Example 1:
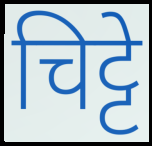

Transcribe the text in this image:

चिट्टे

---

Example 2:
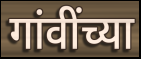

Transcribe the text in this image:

गांवींच्या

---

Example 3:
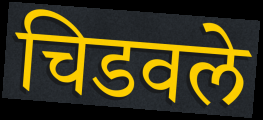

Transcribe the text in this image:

चिडवले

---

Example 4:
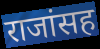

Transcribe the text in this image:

राजांसह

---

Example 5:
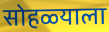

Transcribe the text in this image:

सोहळ्याला